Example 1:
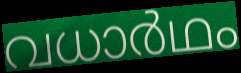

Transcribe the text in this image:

വധാർഥം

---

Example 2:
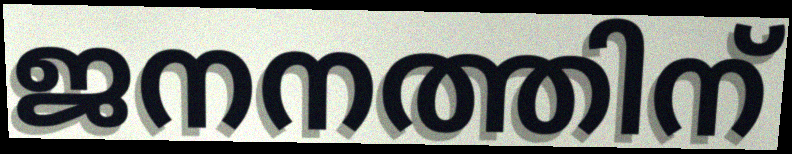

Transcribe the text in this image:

ജനനത്തിന്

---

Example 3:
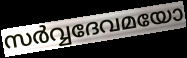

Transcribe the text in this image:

സർവ്വദേവമയോ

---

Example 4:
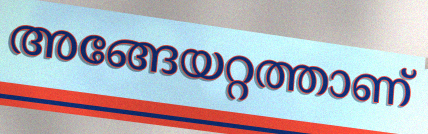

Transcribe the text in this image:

അങ്ങേയറ്റത്താണ്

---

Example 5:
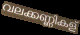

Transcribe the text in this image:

വലക്കണ്ണികള്